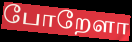
போறேளா